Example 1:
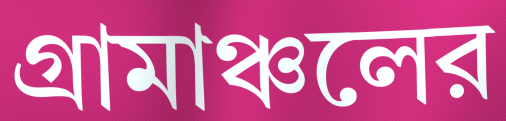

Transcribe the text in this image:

গ্রামাঞ্চলের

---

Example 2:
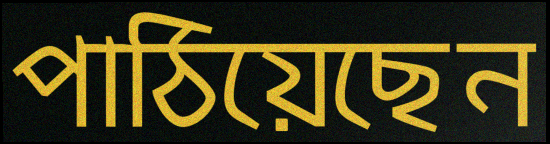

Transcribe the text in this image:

পাঠিয়েছেন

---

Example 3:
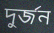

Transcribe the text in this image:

দুর্জন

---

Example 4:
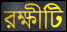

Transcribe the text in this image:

রক্ষীটি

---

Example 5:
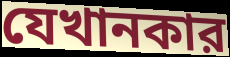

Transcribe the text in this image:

যেখানকার